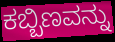
ಕಬ್ಬಿಣವನ್ನು